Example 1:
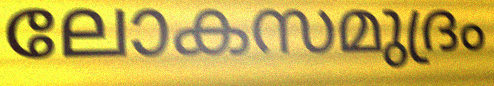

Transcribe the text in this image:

ലോകസമുദ്രം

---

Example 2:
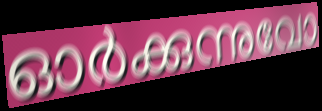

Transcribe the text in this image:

ഓർക്കുന്നുവോ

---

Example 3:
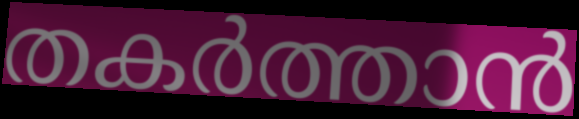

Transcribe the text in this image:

തകർത്താൻ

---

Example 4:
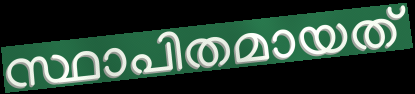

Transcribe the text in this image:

സ്ഥാപിതമായത്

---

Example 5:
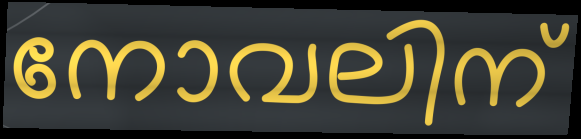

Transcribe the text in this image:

നോവലിന്